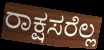
ರಾಕ್ಷಸರೆಲ್ಲ